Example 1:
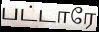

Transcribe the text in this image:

பட்டாரே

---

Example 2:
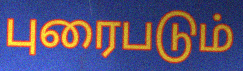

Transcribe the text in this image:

புரைபடும்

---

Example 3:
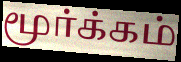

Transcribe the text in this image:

மூர்க்கம்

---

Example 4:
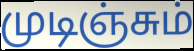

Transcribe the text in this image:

முடிஞ்சும்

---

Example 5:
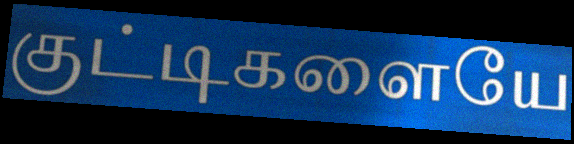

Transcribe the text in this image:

குட்டிகளையே